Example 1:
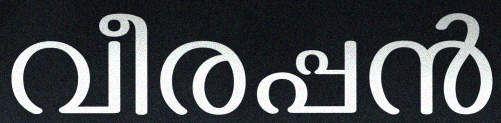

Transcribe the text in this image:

വീരപ്പൻ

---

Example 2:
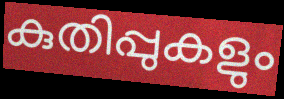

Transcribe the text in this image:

കുതിപ്പുകളും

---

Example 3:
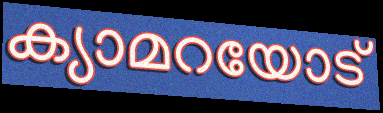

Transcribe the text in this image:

ക്യാമറയോട്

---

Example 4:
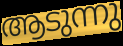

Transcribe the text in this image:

ആടുന്നു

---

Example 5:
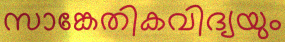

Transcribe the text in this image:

സാങ്കേതികവിദ്യയും